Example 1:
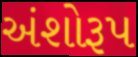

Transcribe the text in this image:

અંશોરૂપ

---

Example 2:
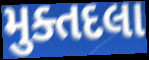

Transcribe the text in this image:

મુક્તદલા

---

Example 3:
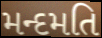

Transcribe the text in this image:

મન્દમતિ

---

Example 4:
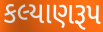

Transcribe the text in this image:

કલ્યાણરૂપ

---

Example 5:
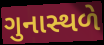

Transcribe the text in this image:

ગુનાસ્થળે